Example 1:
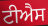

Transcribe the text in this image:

ਟੀਐਸ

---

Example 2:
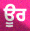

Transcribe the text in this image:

ਊਰ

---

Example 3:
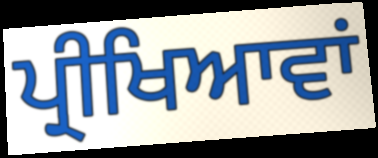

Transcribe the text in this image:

ਪ੍ਰੀਖਿਆਵਾਂ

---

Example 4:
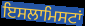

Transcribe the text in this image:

ਇਸਲਾਮਿਸਟਾਂ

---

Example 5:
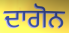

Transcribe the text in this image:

ਦਾਗੋਨ